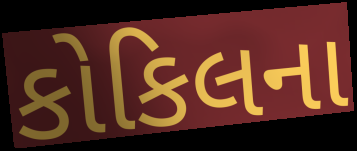
કોકિલના